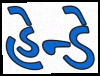
હેન્ડે